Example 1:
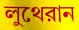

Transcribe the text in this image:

লুথেরান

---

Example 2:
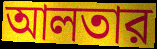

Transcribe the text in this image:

আলতার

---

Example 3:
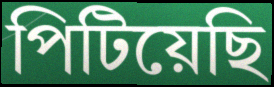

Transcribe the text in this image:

পিটিয়েছি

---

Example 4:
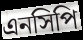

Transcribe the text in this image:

এনসিপি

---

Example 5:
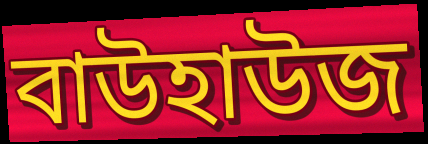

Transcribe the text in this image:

বাউহাউজ